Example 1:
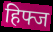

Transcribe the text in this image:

हिफ्ज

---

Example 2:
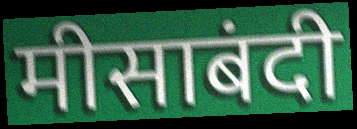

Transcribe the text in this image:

मीसाबंदी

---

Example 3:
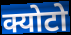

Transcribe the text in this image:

क्योटो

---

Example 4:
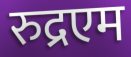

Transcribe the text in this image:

रुद्रएम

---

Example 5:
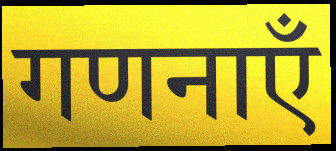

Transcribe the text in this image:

गणनाएँ